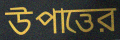
উপাত্তের